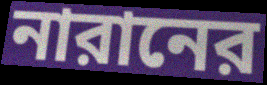
নারানের